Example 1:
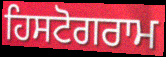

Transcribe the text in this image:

ਹਿਸਟੋਗਰਾਮ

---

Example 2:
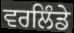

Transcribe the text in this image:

ਵਰਲਿੰਡੇ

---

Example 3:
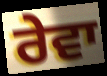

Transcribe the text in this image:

ਰੇਵਾ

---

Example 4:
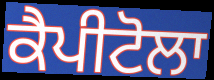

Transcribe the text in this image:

ਕੈਪੀਟੋਲਾ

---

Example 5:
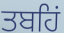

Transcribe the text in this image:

ਤਬਹਿਂ